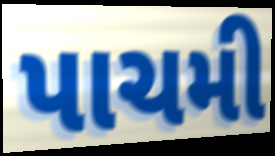
પાચમી